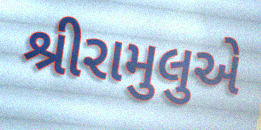
શ્રીરામુલુએ